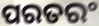
ପରତରଂ